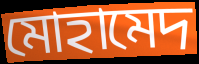
মোহামেদ